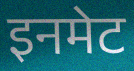
इनमेट